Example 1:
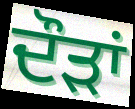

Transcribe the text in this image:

ਦੌੜਾਂ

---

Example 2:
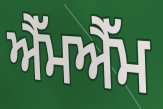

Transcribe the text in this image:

ਐੱਮਐੱਮ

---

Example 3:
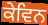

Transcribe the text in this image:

ਕੇਵਿਨ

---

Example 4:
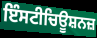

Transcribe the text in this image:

ਇੰਸਟੀਚਿਊਸ਼ਨਜ਼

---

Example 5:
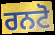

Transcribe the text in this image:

ਰਨਟੋ